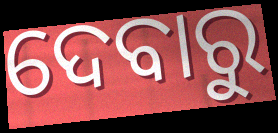
ଦେବାରୁ